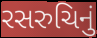
રસરુચિનું